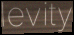
levity